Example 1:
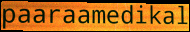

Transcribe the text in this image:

paaraamedikal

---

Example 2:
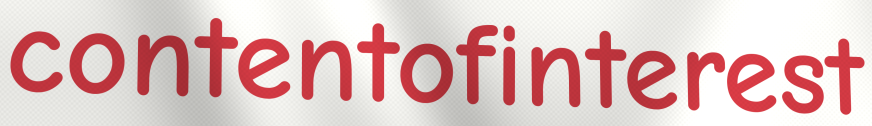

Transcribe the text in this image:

contentofinterest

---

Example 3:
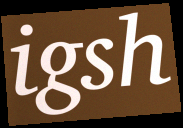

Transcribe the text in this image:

igsh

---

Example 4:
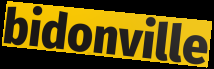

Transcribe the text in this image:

bidonville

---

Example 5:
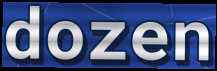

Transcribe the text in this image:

dozen